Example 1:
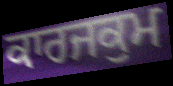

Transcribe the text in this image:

ਕਾਰਜਕੁਮ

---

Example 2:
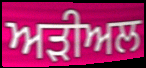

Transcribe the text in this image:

ਅੜੀਅਲ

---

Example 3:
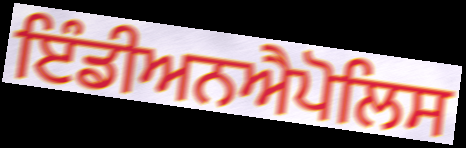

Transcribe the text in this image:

ਇੰਡੀਅਨਐਪੋਲਿਸ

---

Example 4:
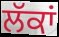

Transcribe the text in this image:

ਲੱਕਾਂ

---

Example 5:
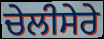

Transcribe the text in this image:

ਚੇਲੀਸੇਰੇ